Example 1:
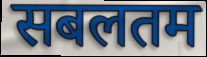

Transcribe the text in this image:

सबलतम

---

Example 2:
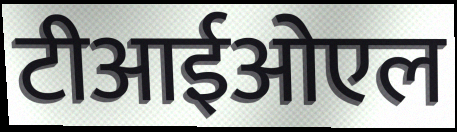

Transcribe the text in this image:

टीआईओएल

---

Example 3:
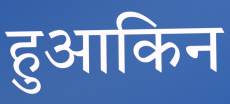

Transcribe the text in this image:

हुआकिन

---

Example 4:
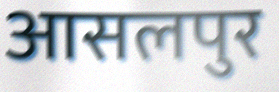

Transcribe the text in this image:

आसलपुर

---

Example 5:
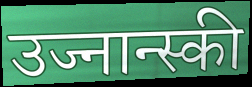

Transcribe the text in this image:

उज्नान्स्की